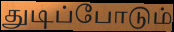
துடிப்போடும்